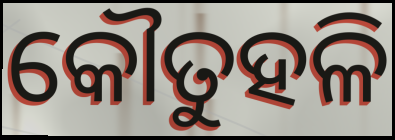
କୌତୁହଳି